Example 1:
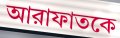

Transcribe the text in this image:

আরাফাতকে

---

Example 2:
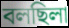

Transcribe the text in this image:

বলছিলা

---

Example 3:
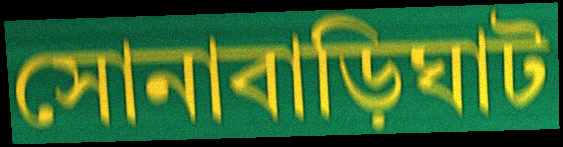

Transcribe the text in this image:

সোনাবাড়িঘাট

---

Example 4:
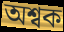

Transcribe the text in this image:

অশ্বক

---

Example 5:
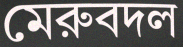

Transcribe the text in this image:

মেরুবদল